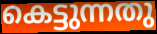
കെട്ടുന്നതു